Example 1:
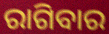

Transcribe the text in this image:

ରାଗିବାର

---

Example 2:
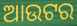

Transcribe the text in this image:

ଆଉଟର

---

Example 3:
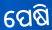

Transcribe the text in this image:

ପେଷି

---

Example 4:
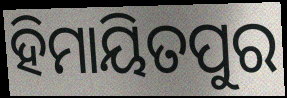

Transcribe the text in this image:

ହିମାୟିତପୁର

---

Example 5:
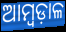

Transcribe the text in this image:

ଆମ୍ବଡ଼ାଳ